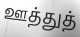
ஊத்துத்